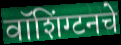
वॉशिंग्टनचे